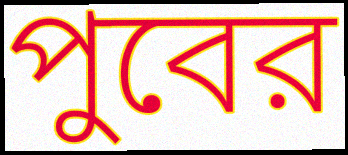
পুবের